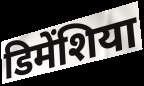
डिमेंशिया